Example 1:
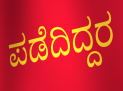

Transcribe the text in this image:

ಪಡೆದಿದ್ದರ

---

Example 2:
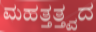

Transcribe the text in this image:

ಮಹತ್ತತ್ತ್ವದ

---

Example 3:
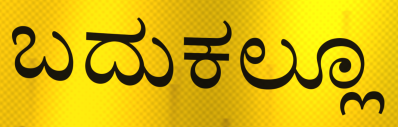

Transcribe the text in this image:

ಬದುಕಲ್ಲೂ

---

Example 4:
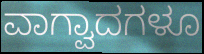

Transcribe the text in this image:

ವಾಗ್ವಾದಗಳೂ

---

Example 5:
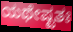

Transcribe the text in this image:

ಯಥೇಷ್ಟತಃ